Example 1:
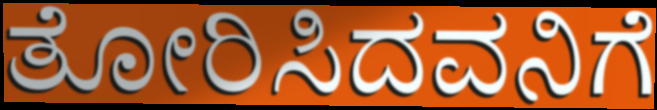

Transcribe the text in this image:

ತೋರಿಸಿದವನಿಗೆ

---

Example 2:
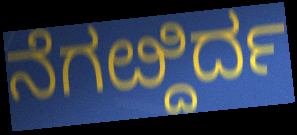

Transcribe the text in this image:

ನೆಗೞ್ದಿರ್ದ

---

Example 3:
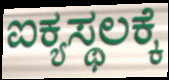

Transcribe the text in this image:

ಐಕ್ಯಸ್ಥಲಕ್ಕೆ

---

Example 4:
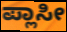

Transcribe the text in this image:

ಪ್ಲಾಸೀ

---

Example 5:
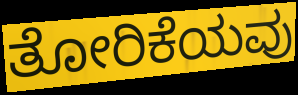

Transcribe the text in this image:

ತೋರಿಕೆಯವು